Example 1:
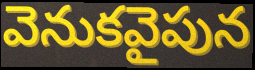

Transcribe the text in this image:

వెనుకవైపున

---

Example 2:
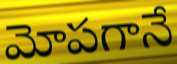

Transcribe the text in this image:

మోపగానే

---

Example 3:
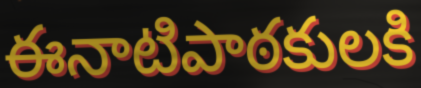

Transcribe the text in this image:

ఈనాటిపాఠకులకి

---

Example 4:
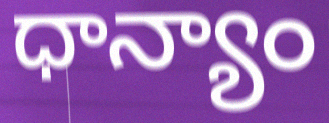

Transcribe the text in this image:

ధాన్యాం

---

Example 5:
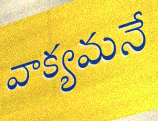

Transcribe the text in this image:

వాక్యమనే